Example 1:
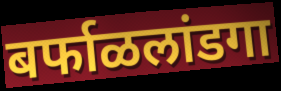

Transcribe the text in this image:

बर्फाळलांडगा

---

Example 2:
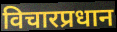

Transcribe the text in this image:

विचारप्रधान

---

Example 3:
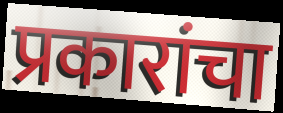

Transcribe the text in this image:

प्रकारांचा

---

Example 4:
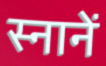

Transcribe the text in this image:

स्नानें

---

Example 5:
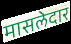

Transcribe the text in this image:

मासलेदार